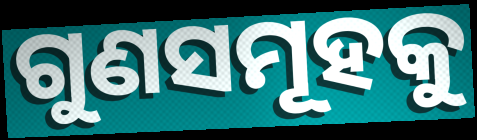
ଗୁଣସମୂହକୁ